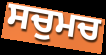
ਸਚੁਮਚ